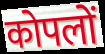
कोपलों